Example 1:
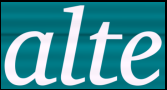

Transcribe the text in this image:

alte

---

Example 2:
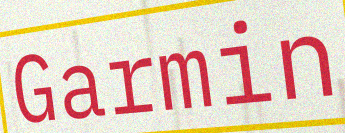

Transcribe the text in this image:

Garmin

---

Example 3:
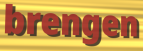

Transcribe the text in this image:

brengen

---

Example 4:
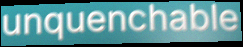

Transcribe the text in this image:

unquenchable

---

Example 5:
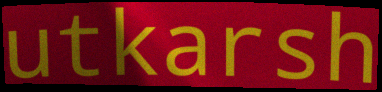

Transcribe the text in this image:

utkarsh